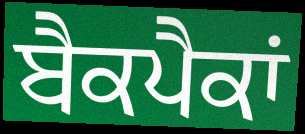
ਬੈਕਪੈਕਾਂ